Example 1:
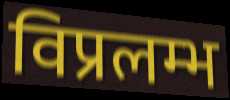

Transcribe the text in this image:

विप्रलम्भ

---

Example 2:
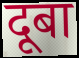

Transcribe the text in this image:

दूबा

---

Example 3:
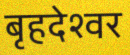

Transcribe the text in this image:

बृहदेश्वर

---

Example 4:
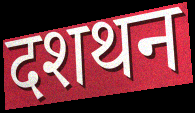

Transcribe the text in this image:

दशथन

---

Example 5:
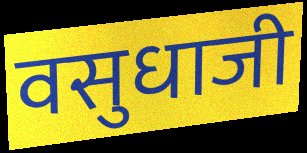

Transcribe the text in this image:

वसुधाजी